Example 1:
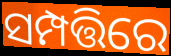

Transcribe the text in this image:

ସମ୍ପତ୍ତିରେ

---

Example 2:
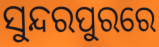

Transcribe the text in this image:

ସୁନ୍ଦରପୁରରେ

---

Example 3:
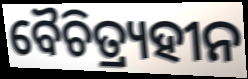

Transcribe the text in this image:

ବୈଚିତ୍ର୍ୟହୀନ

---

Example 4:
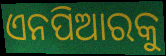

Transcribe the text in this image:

ଏନପିଆରକୁ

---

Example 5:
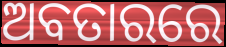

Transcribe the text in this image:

ଅବତାରରେ